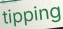
tipping